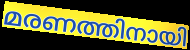
മരണത്തിനായി